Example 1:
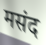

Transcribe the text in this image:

मसंद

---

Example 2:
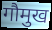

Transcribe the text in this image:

गौमुख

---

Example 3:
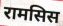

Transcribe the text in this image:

रामसिस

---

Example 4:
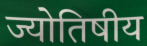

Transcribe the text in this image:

ज्योतिषीय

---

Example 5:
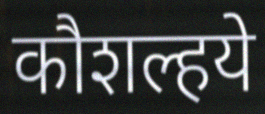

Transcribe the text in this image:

कौशल्हये